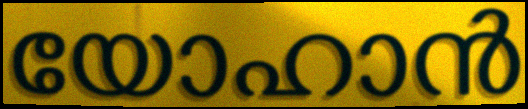
യോഹാൻ